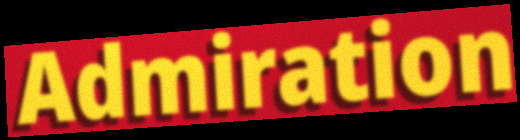
Admiration